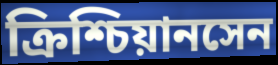
ক্রিশ্চিয়ানসেন